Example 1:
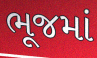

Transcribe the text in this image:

ભૂજમાં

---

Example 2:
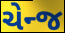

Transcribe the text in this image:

ચેન્જ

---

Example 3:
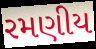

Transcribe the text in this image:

રમણીય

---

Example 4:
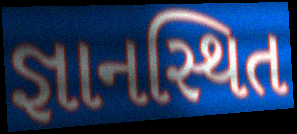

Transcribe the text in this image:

જ્ઞાનસ્થિત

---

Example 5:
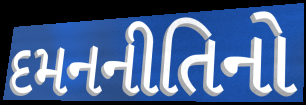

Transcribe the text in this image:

દમનનીતિનો